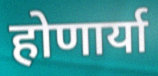
होणार्या